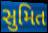
સુમિત